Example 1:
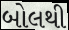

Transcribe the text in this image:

બોલથી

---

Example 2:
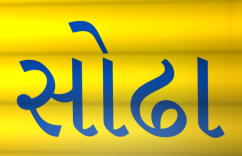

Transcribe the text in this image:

સોઢા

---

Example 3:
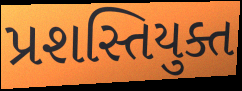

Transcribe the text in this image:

પ્રશસ્તિયુક્ત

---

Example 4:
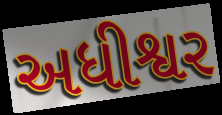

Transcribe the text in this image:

અધીશ્વર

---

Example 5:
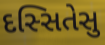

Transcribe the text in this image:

દસ્સિતેસુ